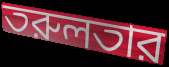
তরুলতার